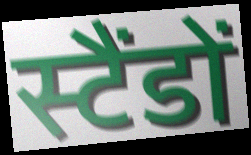
स्टैंडों